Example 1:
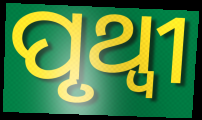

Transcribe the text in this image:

ପୃଥ୍ଵୀ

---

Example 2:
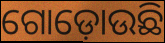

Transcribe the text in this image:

ଗୋଡ଼ୋଉଛି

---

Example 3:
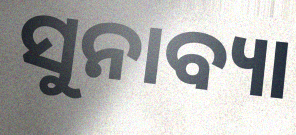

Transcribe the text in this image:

ସୁନାବ୍ୟା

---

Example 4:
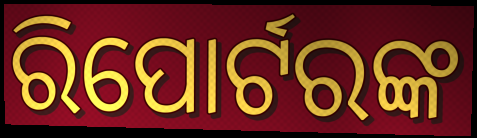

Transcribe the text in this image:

ରିପୋର୍ଟରଙ୍କ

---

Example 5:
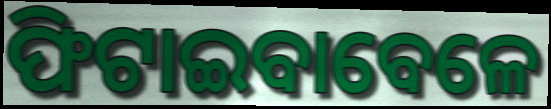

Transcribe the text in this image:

ଫିଟାଇବାବେଳେ